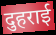
दुहराई